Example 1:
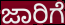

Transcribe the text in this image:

ಜಾರಿಗೆ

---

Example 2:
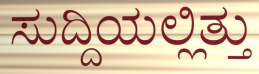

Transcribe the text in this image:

ಸುದ್ದಿಯಲ್ಲಿತ್ತು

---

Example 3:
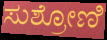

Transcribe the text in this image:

ಸುಶ್ರೋಣಿ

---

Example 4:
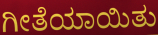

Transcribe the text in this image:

ಗೀತೆಯಾಯಿತು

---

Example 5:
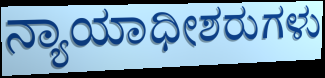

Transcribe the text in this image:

ನ್ಯಾಯಾಧೀಶರುಗಳು